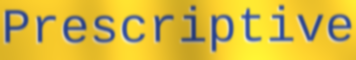
Prescriptive